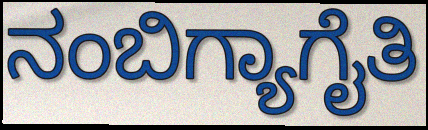
ನಂಬಿಗ್ಯಾಗೈತಿ